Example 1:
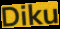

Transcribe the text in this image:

Diku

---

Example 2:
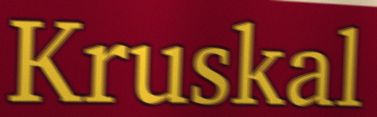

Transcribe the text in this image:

Kruskal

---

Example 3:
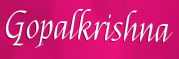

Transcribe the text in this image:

Gopalkrishna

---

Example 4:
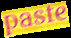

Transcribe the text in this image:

paste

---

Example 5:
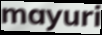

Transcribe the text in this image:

mayuri